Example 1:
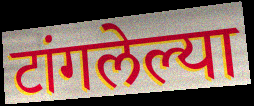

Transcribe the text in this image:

टांगलेल्या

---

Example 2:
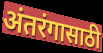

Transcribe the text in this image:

अंतरंगासाठी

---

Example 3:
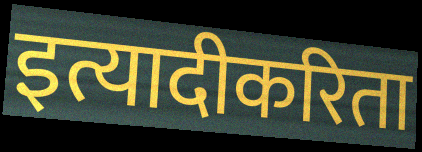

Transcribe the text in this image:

इत्यादीकरिता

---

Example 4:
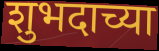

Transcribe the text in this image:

शुभदाच्या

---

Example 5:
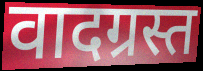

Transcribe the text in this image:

वादग्रस्त